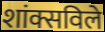
शांक्सविले